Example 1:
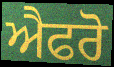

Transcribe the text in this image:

ਐਫਰੋ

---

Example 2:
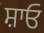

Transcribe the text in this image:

ਸ਼ਾਓ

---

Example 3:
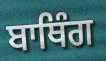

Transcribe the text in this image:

ਬਾਥਿੰਗ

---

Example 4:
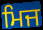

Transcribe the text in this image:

ਮਿਜ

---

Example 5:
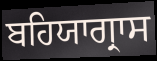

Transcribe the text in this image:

ਬਹਿਯਾਗ੍ਰਾਸ